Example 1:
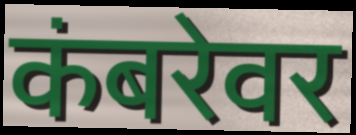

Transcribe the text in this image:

कंबरेवर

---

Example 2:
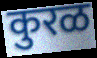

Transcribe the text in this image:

कुरळ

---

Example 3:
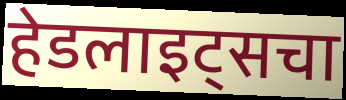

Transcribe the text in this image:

हेडलाइट्सचा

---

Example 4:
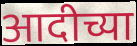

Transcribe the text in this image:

आदीच्या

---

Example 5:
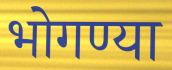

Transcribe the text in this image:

भोगण्या